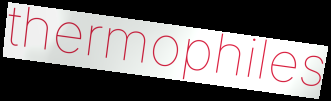
thermophiles